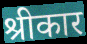
श्रीकार